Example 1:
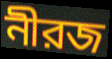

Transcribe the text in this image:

নীরজ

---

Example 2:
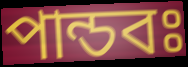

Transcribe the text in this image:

পান্ডবঃ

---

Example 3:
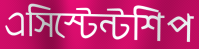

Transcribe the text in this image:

এসিস্টেন্টশিপ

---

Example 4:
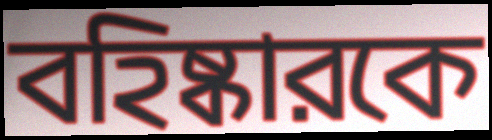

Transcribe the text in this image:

বহিষ্কারকে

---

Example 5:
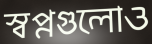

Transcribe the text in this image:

স্বপ্নগুলোও